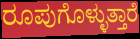
ರೂಪುಗೊಳ್ಳುತ್ತಾರೆ